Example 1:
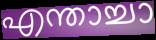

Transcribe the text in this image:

എന്താച്ചാ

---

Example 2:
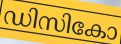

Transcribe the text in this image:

ഡിസികോ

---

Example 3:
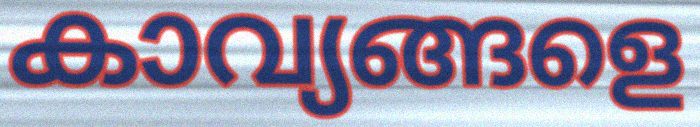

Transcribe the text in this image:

കാവ്യങ്ങളെ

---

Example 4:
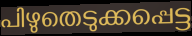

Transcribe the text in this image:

പിഴുതെടുക്കപ്പെട്ട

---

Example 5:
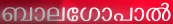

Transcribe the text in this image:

ബാലഗോപാൽ